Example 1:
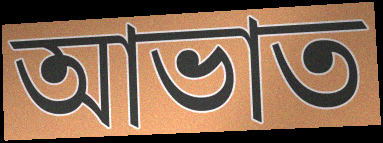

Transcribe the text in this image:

আভাত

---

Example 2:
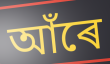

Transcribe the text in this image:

আঁৰে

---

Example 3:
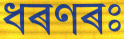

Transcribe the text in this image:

ধৰণৰঃ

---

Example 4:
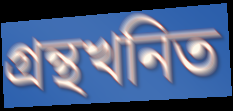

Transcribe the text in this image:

গ্ৰন্থখনিত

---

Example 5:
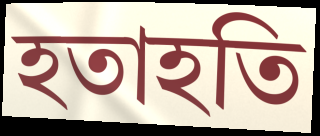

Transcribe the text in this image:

হতাহতি